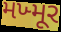
મખ્મૂર